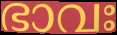
ഭാവഃ